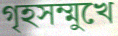
গৃহসম্মুখে